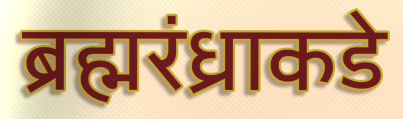
ब्रह्मरंध्राकडे